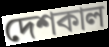
দেশকাল